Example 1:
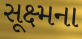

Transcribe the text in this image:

સૂક્ષ્મના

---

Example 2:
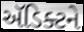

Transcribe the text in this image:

ઍડિક્ટને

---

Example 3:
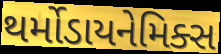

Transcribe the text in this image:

થર્મોડાયનેમિક્સ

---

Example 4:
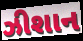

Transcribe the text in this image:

ઝીશાન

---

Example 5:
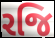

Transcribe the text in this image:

રજિ